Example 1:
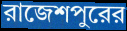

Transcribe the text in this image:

রাজেশপুরের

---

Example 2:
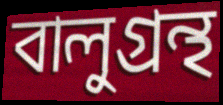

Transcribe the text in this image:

বালুগ্রন্থ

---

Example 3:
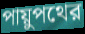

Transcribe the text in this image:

পায়ুপথের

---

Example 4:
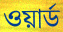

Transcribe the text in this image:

ওয়ার্ড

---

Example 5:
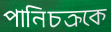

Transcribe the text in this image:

পানিচক্রকে